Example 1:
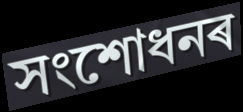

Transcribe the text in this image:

সংশোধনৰ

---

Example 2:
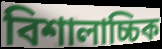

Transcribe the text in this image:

বিশালাচ্চিক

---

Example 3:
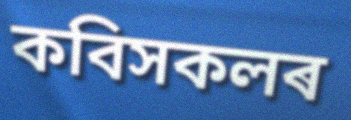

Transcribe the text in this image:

কবিসকলৰ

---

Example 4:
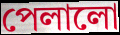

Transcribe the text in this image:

পেলালো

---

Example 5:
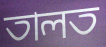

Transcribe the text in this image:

তালত